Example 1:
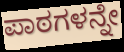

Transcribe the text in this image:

ಪಾಠಗಳನ್ನೇ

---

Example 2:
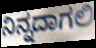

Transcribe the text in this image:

ನಿನ್ನದಾಗಲಿ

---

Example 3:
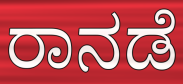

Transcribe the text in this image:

ರಾನಡೆ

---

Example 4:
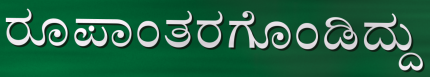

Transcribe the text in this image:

ರೂಪಾಂತರಗೊಂಡಿದ್ದು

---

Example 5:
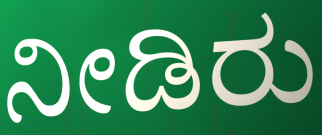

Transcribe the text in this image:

ನೀಡಿರು